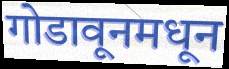
गोडावूनमधून